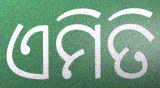
ଏମିତି